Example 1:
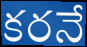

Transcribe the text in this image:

కరనే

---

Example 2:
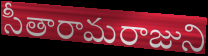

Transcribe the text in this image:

సీతారామరాజుని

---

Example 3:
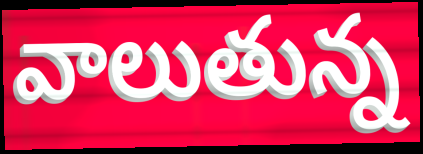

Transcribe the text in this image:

వాలుతున్న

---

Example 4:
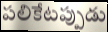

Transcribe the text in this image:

పలికేటప్పుడు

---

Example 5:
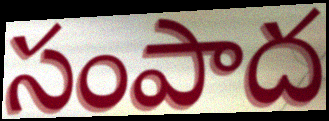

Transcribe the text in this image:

సంపాద